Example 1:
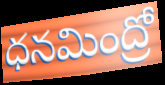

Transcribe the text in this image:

ధనమింద్రో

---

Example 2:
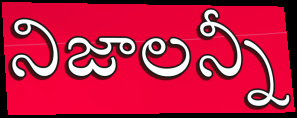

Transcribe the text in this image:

నిజాలన్నీ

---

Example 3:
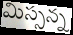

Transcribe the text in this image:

మిస్సన్న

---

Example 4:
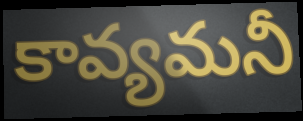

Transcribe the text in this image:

కావ్యమనీ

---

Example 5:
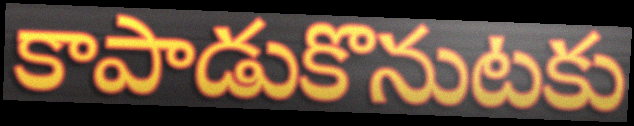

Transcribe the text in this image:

కాపాడుకొనుటకు